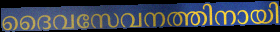
ദൈവസേവനത്തിനായി